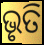
ଭୃତି